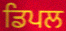
ਡਿਪਲ